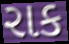
રાક